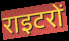
राइटरों